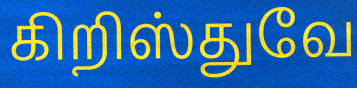
கிறிஸ்துவே